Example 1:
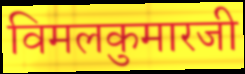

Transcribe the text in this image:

विमलकुमारजी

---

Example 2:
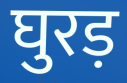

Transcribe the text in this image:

घुरड़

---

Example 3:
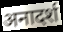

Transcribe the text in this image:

अनादर्श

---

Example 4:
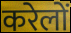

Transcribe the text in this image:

करेलों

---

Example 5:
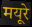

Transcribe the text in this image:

मयूरे